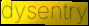
dysentry